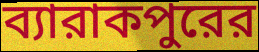
ব্যারাকপুরের